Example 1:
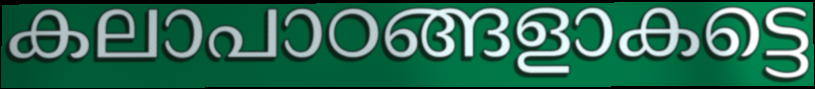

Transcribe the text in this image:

കലാപാഠങ്ങളാകട്ടെ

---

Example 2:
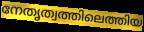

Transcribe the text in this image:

നേതൃത്വത്തിലെത്തിയ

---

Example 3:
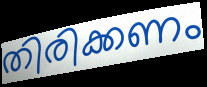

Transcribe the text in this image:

തിരിക്കണം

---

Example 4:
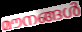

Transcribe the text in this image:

മൗനങ്ങൾ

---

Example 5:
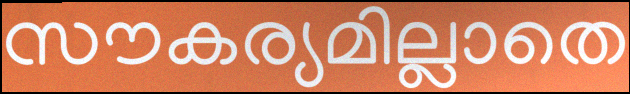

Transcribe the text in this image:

സൗകര്യമില്ലാതെ